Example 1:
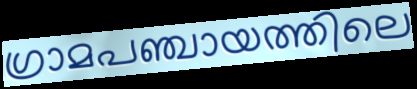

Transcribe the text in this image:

ഗ്രാമപഞ്ചായത്തിലെ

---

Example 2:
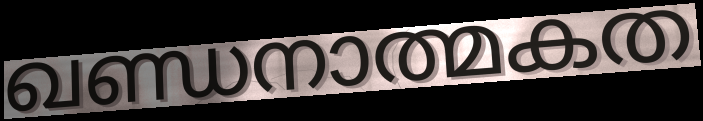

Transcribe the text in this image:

ഖണ്ഡനാത്മകത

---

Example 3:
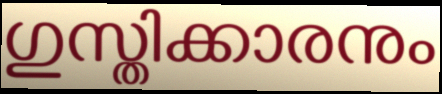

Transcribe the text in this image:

ഗുസ്തിക്കാരനും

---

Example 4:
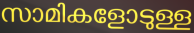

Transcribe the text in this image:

സാമികളോടുള്ള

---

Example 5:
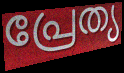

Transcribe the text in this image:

പ്രേത്യ